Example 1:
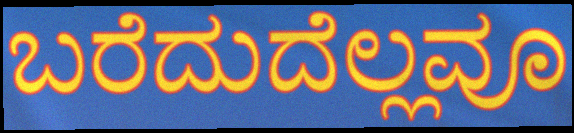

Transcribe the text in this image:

ಬರೆದುದೆಲ್ಲವೂ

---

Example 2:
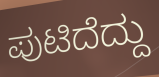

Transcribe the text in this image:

ಪುಟಿದೆದ್ದು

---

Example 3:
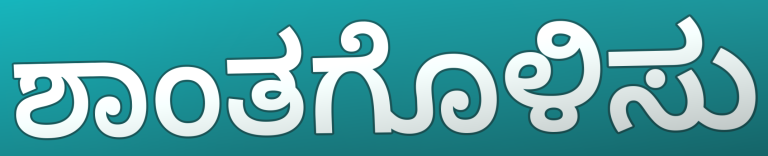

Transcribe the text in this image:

ಶಾಂತಗೊಳಿಸು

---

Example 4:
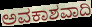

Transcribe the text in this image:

ಅವಕಾಶವಾದಿ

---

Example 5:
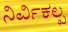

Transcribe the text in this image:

ನಿರ್ವಿಕಲ್ಪ